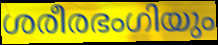
ശരീരഭംഗിയും